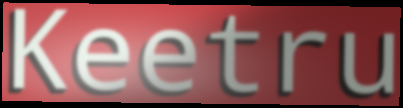
Keetru